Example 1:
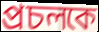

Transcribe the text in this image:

প্রচলকে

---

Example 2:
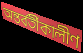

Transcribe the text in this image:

অন্তর্বর্তীকালীণ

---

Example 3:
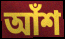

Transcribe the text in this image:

আঁশ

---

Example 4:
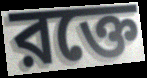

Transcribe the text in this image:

রক্তে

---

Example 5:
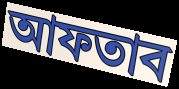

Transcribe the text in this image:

আফতাব